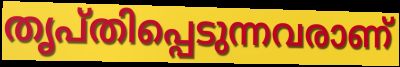
തൃപ്തിപ്പെടുന്നവരാണ്